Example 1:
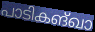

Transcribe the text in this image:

പാടികങ്ഖാ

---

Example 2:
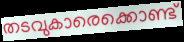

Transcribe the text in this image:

തടവുകാരെക്കൊണ്ട്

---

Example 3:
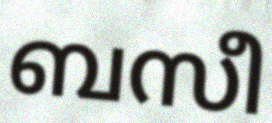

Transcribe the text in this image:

ബസീ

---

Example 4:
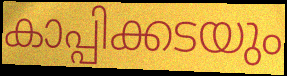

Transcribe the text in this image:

കാപ്പിക്കടയും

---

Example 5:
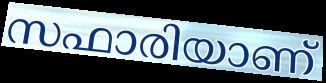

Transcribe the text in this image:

സഫാരിയാണ്